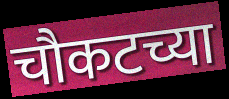
चौकटच्या